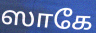
ஸாகே